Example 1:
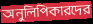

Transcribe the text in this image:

অনুলিপিকারদের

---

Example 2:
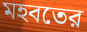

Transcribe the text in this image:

মহবতের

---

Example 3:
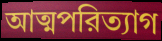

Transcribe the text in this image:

আত্মপরিত্যাগ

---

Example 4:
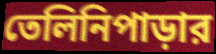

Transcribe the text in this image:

তেলিনিপাড়ার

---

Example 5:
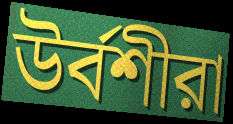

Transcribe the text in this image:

উর্বশীরা